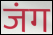
जंग